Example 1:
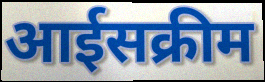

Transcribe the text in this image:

आईसक्रीम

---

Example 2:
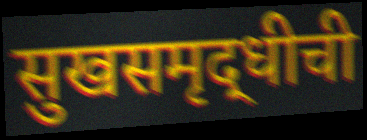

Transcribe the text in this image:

सुखसमृद्धीची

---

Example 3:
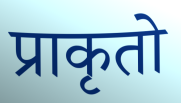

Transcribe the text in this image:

प्राकृतो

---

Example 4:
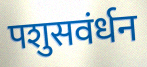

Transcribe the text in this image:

पशुसवंर्धन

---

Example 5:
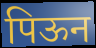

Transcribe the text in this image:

पिऊन